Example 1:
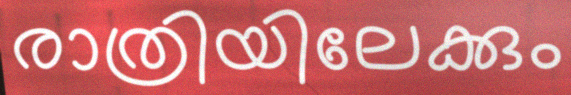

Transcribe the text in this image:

രാത്രിയിലേക്കും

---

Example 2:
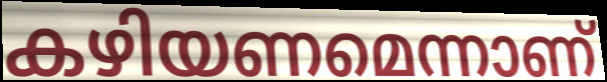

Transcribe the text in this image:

കഴിയണമെന്നാണ്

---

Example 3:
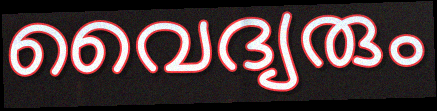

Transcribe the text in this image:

വൈദ്യരും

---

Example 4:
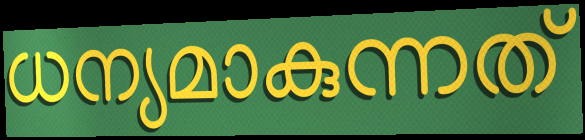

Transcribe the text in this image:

ധന്യമാകുന്നത്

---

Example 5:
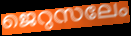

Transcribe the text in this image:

ജെറുസലേം